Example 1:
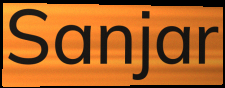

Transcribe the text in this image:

Sanjar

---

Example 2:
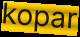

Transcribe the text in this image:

kopar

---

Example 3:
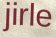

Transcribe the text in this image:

jirle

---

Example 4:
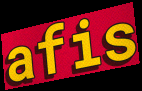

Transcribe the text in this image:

afis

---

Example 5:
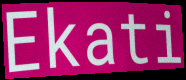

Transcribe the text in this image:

Ekati